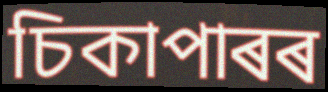
চিকাপাৰৰ